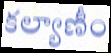
కల్యాణీం